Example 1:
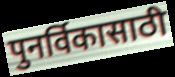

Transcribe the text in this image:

पुनर्विकासाठी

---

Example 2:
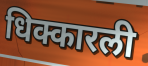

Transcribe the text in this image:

धिक्कारली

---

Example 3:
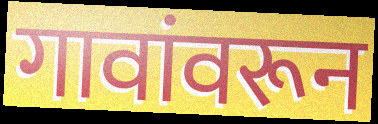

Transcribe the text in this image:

गावांवरून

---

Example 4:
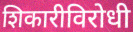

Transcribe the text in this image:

शिकारीविरोधी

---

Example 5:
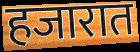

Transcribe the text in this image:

हजारात